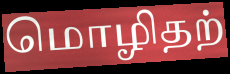
மொழிதற்